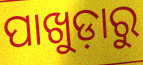
ପାଖୁଡ଼ାରୁ